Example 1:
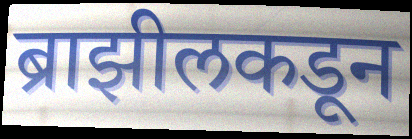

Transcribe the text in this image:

ब्राझीलकडून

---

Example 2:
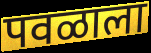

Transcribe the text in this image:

पवळाला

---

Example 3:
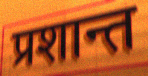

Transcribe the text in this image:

प्रशान्त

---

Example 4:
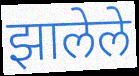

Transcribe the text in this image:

झालेले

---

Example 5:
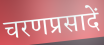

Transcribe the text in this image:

चरणप्रसादें